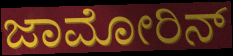
ಜಾಮೋರಿನ್